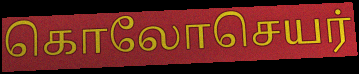
கொலோசெயர்